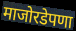
माजोरडेपणा